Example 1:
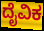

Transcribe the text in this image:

ದೈವಿಕ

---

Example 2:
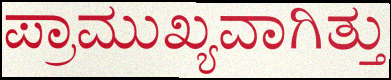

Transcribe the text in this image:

ಪ್ರಾಮುಖ್ಯವಾಗಿತ್ತು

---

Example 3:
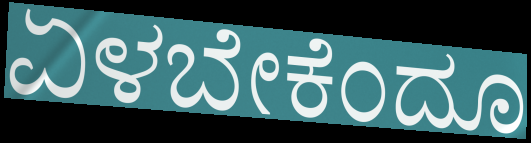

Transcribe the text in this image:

ಏಳಬೇಕೆಂದೂ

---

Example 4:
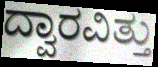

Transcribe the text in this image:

ದ್ವಾರವಿತ್ತು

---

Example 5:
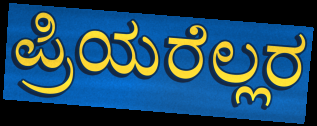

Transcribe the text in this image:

ಪ್ರಿಯರೆಲ್ಲರ